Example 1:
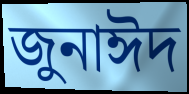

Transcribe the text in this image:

জুনাঈদ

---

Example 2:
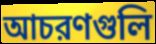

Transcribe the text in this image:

আচরণগুলি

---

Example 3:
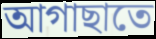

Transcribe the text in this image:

আগাছাতে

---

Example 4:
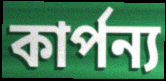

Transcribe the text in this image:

কার্পন্য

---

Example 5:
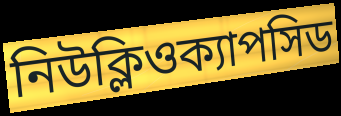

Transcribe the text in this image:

নিউক্লিওক্যাপসিড